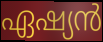
ഏഷ്യൻ